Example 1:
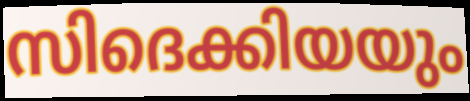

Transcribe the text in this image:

സിദെക്കിയയും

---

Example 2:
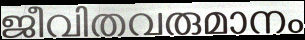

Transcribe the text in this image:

ജീവിതവരുമാനം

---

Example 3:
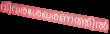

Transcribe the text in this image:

വിവരശേഖരണത്തിൽ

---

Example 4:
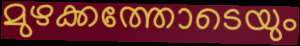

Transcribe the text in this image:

മുഴക്കത്തോടെയും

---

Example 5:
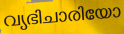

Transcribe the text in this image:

വ്യഭിചാരിയോ